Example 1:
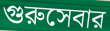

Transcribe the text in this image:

গুরুসেবার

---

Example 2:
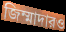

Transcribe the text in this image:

জিম্মাদারও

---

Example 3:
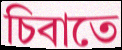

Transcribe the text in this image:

চিবাতে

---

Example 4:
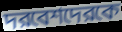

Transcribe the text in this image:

দরবেশদেরকে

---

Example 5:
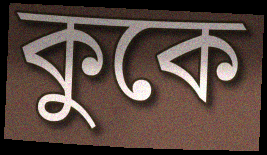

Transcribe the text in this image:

কুকে